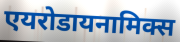
एयरोडायनामिक्स